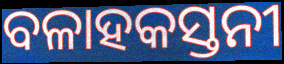
ବଳାହକସ୍ତନୀ